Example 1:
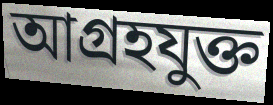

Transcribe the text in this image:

আগ্রহযুক্ত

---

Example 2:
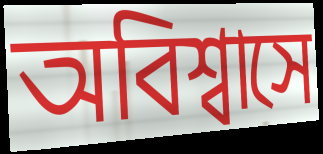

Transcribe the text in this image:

অবিশ্বাসে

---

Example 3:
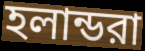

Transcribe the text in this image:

হলান্ডরা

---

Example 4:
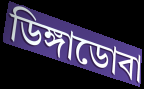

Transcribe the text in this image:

ডিঙ্গাডোবা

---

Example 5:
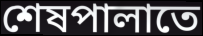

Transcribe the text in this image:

শেষপালাতে